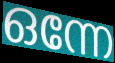
ഒന്നേ